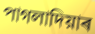
পাগলাদিয়াৰ